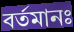
বর্তমানঃ